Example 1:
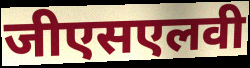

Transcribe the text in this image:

जीएसएलवी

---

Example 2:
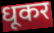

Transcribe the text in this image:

धूकर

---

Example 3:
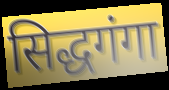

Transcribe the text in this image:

सिद्धगंगा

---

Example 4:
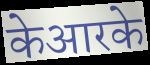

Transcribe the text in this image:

केआरके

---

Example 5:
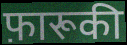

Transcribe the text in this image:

फ़ारूकी